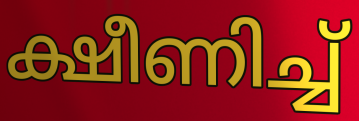
ക്ഷീണിച്ച്